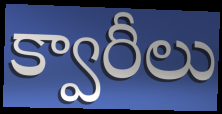
క్వారీలు